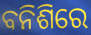
ବନିଶିରେ